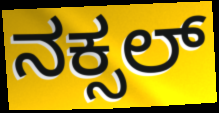
ನಕ್ಸಲ್